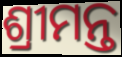
ଶ୍ରୀମନ୍ତ